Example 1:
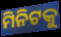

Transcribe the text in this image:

ମିନିଟକୁ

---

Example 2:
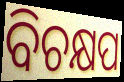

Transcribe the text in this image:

ବିଚକ୍ଷପ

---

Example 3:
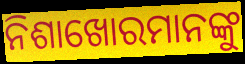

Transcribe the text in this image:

ନିଶାଖୋରମାନଙ୍କୁ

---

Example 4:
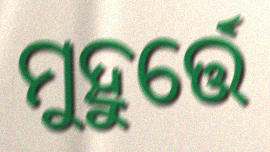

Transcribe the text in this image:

ମୁହୁର୍ତ୍ତେ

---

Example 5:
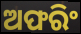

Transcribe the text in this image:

ଅଫରିଂ